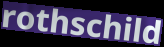
rothschild